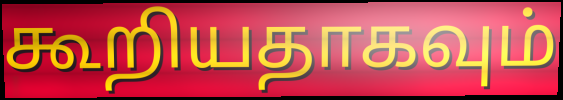
கூறியதாகவும்